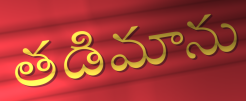
తడిమాను